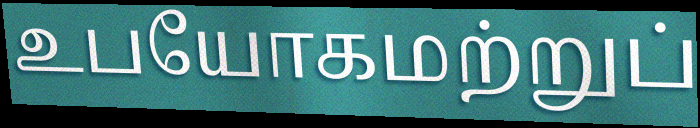
உபயோகமற்றுப்